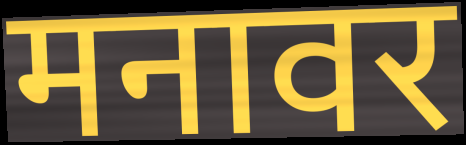
मनावर